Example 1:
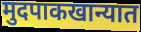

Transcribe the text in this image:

मुदपाकखान्यात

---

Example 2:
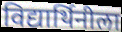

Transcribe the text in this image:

विद्यार्थिनीला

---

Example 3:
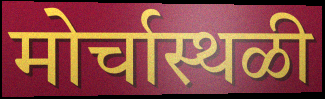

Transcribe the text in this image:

मोर्चास्थळी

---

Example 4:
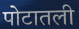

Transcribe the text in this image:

पोटातली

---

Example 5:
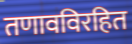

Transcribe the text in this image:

तणावविरहित